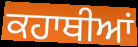
ਕਹਾਥੀਆਂ